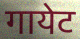
गायेट